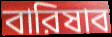
বারিষাব